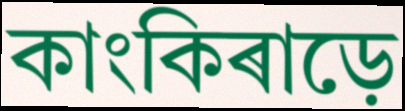
কাংকিৰাড়ে